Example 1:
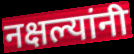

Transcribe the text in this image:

नक्षल्यांनी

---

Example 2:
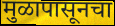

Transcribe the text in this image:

मुळापासूनचा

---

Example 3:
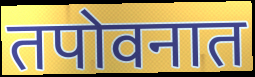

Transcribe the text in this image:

तपोवनात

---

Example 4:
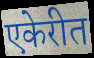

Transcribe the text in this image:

एकेरीत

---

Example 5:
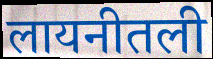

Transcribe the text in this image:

लायनीतली